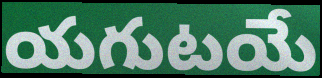
యగుటయే